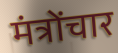
मंत्रोंचार